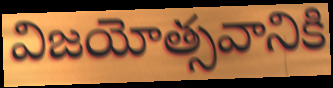
విజయోత్సవానికి